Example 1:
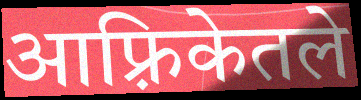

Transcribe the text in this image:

आफ़्रिकेतले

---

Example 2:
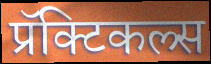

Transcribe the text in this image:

प्रॅक्टिकल्स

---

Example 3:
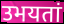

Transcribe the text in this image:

उभयतां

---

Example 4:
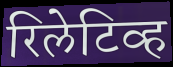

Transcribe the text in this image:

रिलेटिव्ह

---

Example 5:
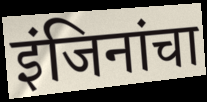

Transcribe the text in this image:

इंजिनांचा